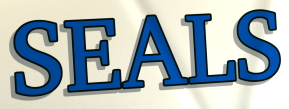
SEALS